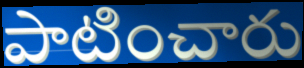
పాటించారు